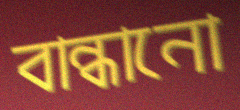
বান্ধানো